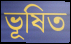
ভূষিত